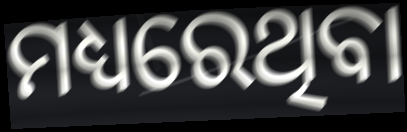
ମଧ୍ୟରେଥିବା